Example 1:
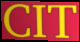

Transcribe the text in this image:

CIT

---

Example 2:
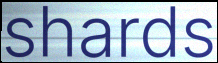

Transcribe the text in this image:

shards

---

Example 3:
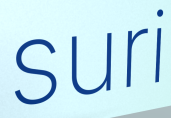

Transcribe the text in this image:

suri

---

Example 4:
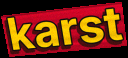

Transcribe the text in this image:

karst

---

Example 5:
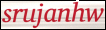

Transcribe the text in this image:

srujanhw